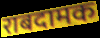
राबदामक